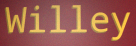
Willey